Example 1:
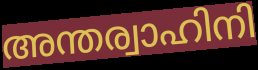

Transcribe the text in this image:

അന്തര്വാഹിനി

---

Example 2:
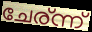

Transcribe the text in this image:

ചേര്ന്ന്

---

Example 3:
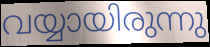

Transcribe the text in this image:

വയ്യായിരുന്നു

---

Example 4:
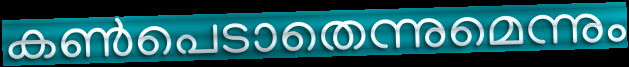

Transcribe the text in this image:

കൺപെടാതെന്നുമെന്നും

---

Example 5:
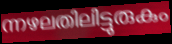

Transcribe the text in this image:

ന്നഴലതിലിട്ടുരുകും